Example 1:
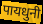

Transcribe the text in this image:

पायधुनी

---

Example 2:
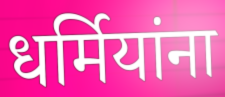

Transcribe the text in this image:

धर्मियांना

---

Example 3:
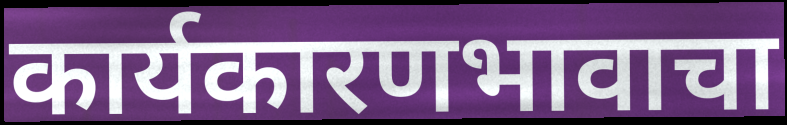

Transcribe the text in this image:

कार्यकारणभावाचा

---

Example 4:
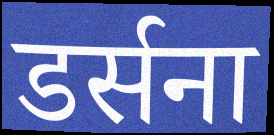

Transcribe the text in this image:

डर्सना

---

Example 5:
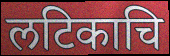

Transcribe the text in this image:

लटिकाचि